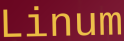
Linum